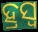
ହ୍ରସ୍ୱ